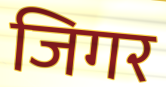
जिगर